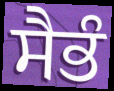
ਸੈਭੰ